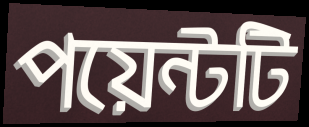
পয়েন্টটি